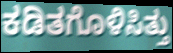
ಕಡಿತಗೊಳಿಸಿತ್ತು